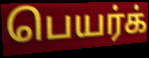
பெயர்க்